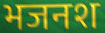
भजनश